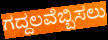
ಗದ್ದಲವೆಬ್ಬಿಸಲು